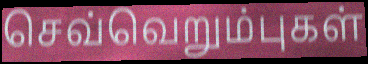
செவ்வெறும்புகள்